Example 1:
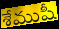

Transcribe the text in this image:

శేముషీ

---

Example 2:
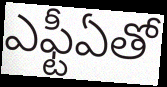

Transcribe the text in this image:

ఎఫ్టీఏతో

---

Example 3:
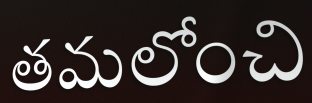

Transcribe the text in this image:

తమలోంచి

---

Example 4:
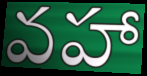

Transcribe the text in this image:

వహా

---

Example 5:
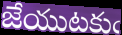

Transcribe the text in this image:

జేయుటకుఁ